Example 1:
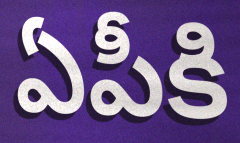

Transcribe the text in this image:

ఏపీకి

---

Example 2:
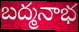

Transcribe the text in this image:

బద్మనాభ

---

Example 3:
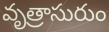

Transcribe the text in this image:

వృత్రాసురుం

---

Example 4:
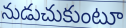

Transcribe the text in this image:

నుడుచుకుంటూ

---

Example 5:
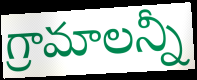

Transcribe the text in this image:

గ్రామాలన్నీ